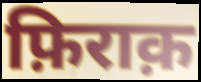
फ़िराक़